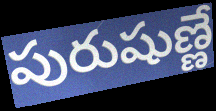
పురుషుణ్ణే